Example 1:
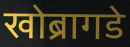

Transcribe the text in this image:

खोब्रागडे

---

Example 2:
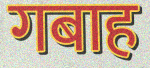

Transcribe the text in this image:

गबाह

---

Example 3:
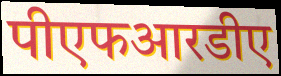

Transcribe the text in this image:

पीएफआरडीए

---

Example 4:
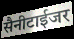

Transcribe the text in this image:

सैनीटाईजर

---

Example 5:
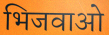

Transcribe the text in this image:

भिजवाओ